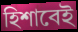
হিশাবেই